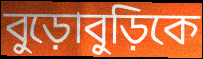
বুড়োবুড়িকে